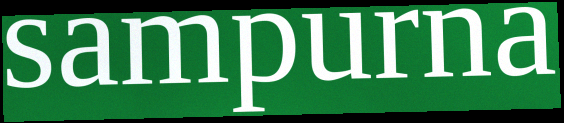
sampurna